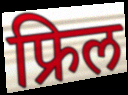
फ्रिल